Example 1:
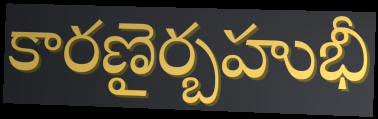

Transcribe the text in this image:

కారణైర్బహుభీ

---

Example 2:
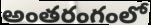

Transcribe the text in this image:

అంతరంగంలో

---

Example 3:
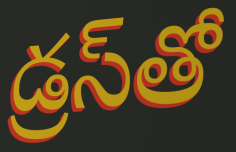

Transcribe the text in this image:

డ్రస్‌తో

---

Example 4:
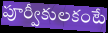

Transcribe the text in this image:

పూర్వీకులకంటే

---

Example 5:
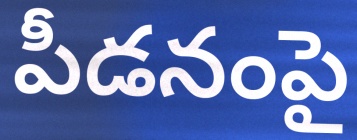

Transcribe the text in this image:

పీడనంపై